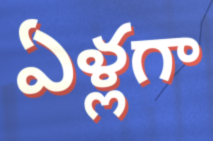
ఏళ్లగా